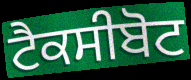
ਟੈਕਸੀਬੋਟ